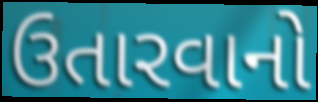
ઉતારવાનો